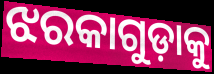
ଝରକାଗୁଡ଼ାକୁ